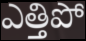
ఎత్తిపో